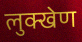
लुक्खेण